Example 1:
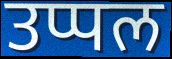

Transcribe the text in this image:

उप्पल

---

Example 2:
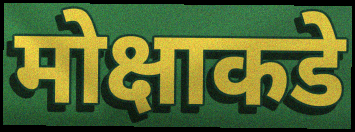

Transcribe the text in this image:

मोक्षाकडे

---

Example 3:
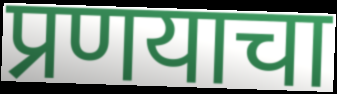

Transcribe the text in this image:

प्रणयाचा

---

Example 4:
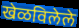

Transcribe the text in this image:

खेळविलेले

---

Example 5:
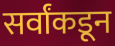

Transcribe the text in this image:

सर्वांकडून